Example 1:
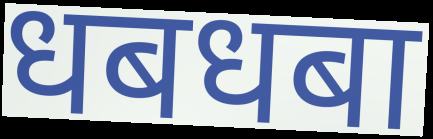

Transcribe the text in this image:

धबधबा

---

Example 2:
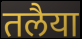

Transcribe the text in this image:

तलैया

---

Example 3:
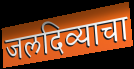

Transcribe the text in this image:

जलदिव्याचा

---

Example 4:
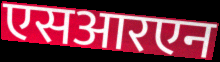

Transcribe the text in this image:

एसआरएन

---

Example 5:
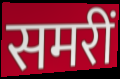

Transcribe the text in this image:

समरीं